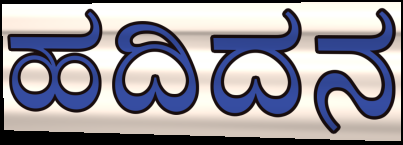
ಹದಿದನ